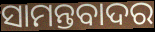
ସାମନ୍ତବାଦର